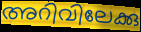
അറിവിലേക്കു